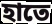
হাতে